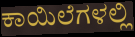
ಕಾಯಿಲೆಗಳಲ್ಲಿ